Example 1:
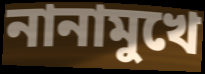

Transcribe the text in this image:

নানামুখে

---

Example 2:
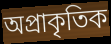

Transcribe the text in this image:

অপ্রাকৃতিক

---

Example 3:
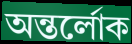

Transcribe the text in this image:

অন্তর্লোক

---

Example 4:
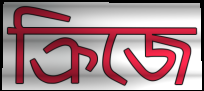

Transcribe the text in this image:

ক্রিজে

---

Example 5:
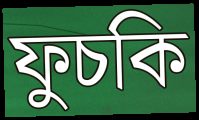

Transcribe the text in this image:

ফুচকি